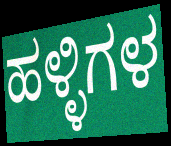
ಹಳ್ಳಿಗಳ